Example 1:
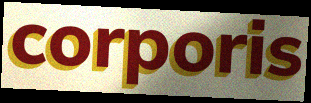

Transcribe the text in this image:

corporis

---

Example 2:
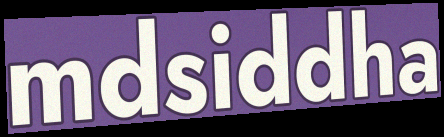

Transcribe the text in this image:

mdsiddha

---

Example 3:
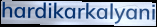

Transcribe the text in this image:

hardikarkalyani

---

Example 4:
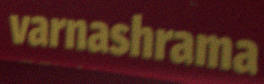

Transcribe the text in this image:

varnashrama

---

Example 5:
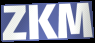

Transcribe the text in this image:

ZKM